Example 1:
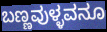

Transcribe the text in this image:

ಬಣ್ಣವುಳ್ಳವನೂ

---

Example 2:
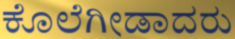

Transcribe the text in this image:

ಕೊಲೆಗೀಡಾದರು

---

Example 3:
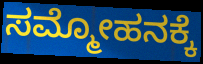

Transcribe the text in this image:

ಸಮ್ಮೋಹನಕ್ಕೆ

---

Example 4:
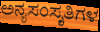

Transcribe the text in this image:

ಅನ್ಯಸಂಸ್ಕೃತಿಗಳ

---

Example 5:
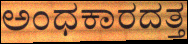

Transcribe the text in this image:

ಅಂಧಕಾರದತ್ತ